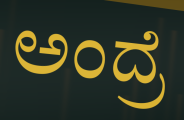
ಅಂದ್ರೆ